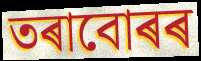
তৰাবোৰৰ